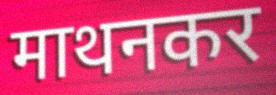
माथनकर